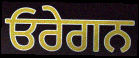
ਓਰੇਗਨ